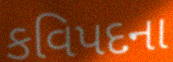
કવિપદના